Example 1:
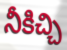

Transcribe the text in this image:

నీకిచ్చి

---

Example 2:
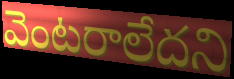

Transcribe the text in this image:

వెంటరాలేదని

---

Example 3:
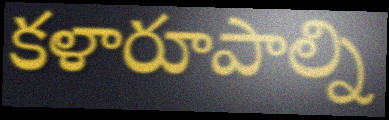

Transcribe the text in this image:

కళారూపాల్ని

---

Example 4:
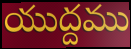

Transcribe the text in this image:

యుద్దము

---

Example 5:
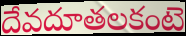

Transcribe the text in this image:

దేవదూతలకంటె